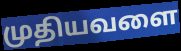
முதியவளை